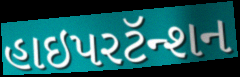
હાઇપરટૅન્શન